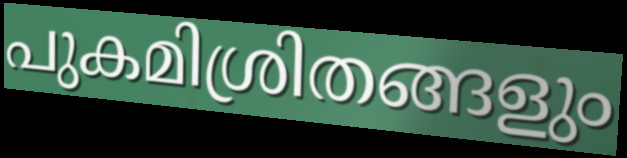
പുകമിശ്രിതങ്ങളും